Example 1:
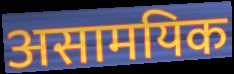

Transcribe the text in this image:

असामयिक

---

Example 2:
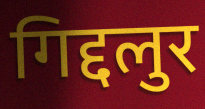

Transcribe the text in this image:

गिद्दलुर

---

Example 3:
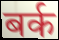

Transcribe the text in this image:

बर्क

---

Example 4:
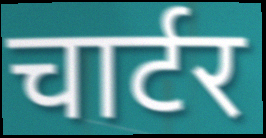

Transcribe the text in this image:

चार्टर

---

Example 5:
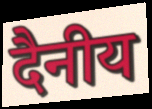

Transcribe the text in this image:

दैनीय